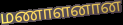
மணாளனான